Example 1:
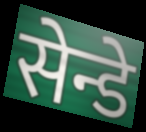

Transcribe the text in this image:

सेन्डे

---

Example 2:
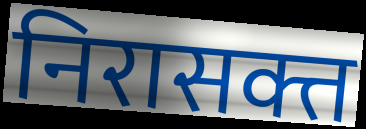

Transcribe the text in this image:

निरासक्त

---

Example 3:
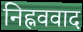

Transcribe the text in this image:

निह्नववाद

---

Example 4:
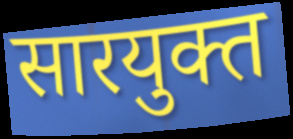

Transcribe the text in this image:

सारयुक्त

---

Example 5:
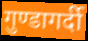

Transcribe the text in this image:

गुण्डागर्दी